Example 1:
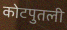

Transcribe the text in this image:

कोटपुतली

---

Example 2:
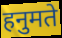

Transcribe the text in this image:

हनुमते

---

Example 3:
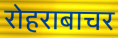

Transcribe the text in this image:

रोहराबाचर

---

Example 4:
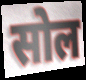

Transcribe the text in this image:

सोल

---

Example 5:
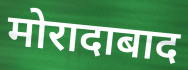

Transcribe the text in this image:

मोरादाबाद